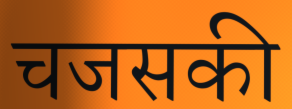
चजसकी